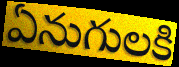
ఏనుగులకి